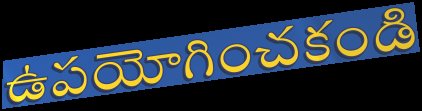
ఉపయోగించకండి